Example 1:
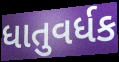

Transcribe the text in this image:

ધાતુવર્ધક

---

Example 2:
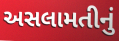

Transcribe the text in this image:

અસલામતીનું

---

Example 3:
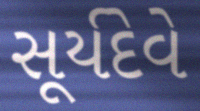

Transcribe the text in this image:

સૂર્યદેવે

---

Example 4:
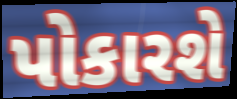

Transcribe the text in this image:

પોકારશે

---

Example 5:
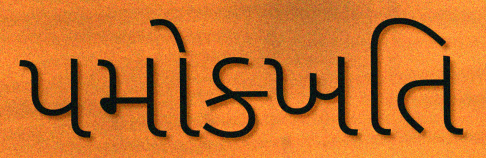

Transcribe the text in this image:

પમોક્ખતિ